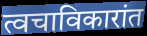
त्वचाविकारांत